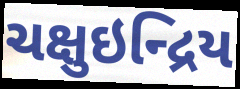
ચક્ષુઇન્દ્રિય